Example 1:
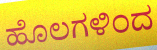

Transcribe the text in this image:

ಹೊಲಗಳಿಂದ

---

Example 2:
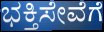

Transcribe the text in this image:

ಭಕ್ತಿಸೇವೆಗೆ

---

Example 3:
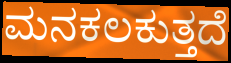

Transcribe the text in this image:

ಮನಕಲಕುತ್ತದೆ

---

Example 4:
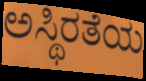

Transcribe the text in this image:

ಅಸ್ಥಿರತೆಯ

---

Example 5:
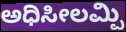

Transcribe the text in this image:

ಅಧಿಸೀಲಮ್ಪಿ